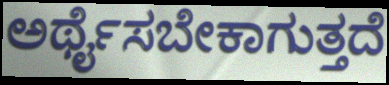
ಅರ್ಥೈಸಬೇಕಾಗುತ್ತದೆ